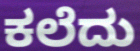
ಕಲೆದು